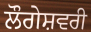
ਲੌਗੇਸ਼ਵਰੀ